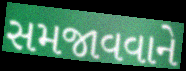
સમજાવવાને